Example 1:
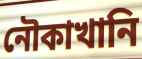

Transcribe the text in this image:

নৌকাখানি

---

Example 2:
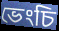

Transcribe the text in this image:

ভেংচি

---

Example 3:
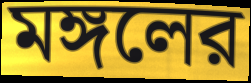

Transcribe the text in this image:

মঙ্গলের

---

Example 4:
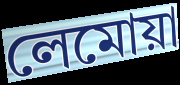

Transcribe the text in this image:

লেমোয়া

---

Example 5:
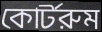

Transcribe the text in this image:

কোর্টরুম